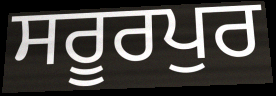
ਸਰੂਰਪੁਰ